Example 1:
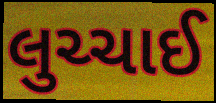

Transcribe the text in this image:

લુચ્ચાઈ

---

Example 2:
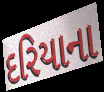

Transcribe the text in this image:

દરિયાના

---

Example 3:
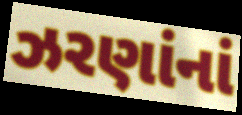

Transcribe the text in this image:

ઝરણાંનાં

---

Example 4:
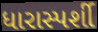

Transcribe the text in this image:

ધારાસ્પર્શી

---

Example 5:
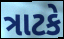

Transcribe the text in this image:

ત્રાટકે